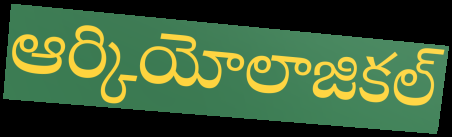
ఆర్కియోలాజికల్